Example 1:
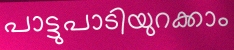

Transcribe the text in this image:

പാട്ടുപാടിയുറക്കാം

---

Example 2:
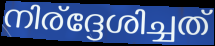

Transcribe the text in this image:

നിര്ദ്ദേശിച്ചത്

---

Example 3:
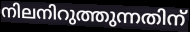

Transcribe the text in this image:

നിലനിറുത്തുന്നതിന്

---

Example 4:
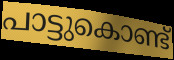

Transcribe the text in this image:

പാട്ടുകൊണ്ട്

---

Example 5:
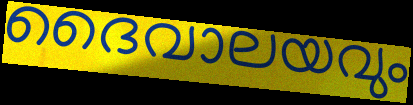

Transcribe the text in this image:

ദൈവാലയവും